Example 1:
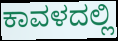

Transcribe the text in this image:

ಕಾವಳದಲ್ಲಿ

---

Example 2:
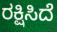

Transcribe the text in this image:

ರಕ್ಷಿಸಿದೆ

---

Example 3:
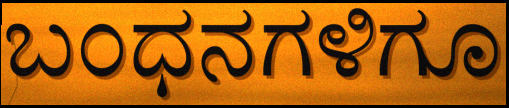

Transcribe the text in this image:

ಬಂಧನಗಳಿಗೂ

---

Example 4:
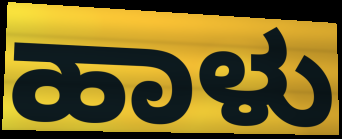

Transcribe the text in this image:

ಹಾಳು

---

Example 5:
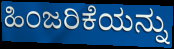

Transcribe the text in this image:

ಹಿಂಜರಿಕೆಯನ್ನು